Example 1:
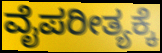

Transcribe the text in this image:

ವೈಪರೀತ್ಯಕ್ಕೆ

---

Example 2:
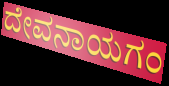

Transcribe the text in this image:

ದೇವನಾಯಗಂ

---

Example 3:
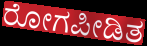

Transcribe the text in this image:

ರೋಗಪೀಡಿತ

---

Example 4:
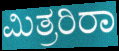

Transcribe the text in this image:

ಮಿತ್ರರಿರಾ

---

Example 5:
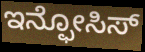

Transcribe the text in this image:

ಇನ್ಫೋಸಿಸ್